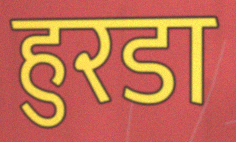
हुरडा